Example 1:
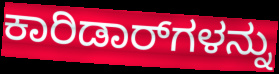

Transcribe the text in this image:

ಕಾರಿಡಾರ್‌ಗಳನ್ನು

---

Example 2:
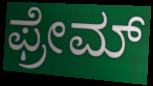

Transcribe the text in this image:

ಫ್ರೇಮ್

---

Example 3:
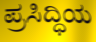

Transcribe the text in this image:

ಪ್ರಸಿದ್ಧಿಯ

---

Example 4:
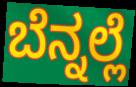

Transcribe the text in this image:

ಬೆನ್ನಲ್ಲೆ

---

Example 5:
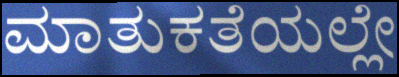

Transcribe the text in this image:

ಮಾತುಕತೆಯಲ್ಲೇ